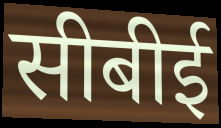
सीबीई